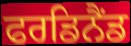
ਫਰਡਿਨੈਂਡ